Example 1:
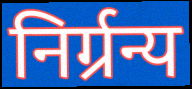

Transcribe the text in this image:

निर्ग्रन्य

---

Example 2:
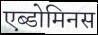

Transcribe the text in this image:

एब्डोमिनस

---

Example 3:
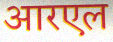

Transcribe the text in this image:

आरएल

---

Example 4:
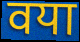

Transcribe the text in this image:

वया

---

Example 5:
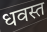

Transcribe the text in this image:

धवस्त